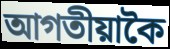
আগতীয়াকৈ